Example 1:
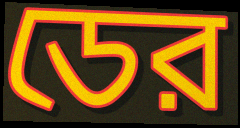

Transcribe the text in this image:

ডের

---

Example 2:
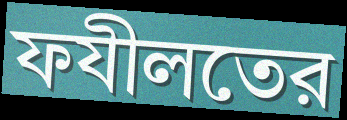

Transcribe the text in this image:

ফযীলতের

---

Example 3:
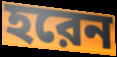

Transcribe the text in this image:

হরেন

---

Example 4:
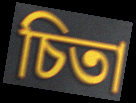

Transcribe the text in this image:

চিতা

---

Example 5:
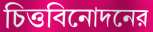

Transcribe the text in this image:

চিত্তবিনোদনের